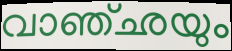
വാഞ്ഛയും